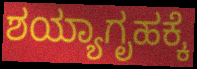
ಶಯ್ಯಾಗೃಹಕ್ಕೆ